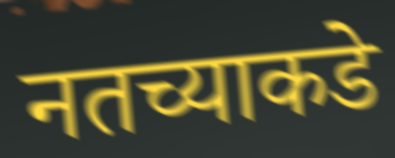
नतच्याकडे